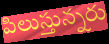
పిలుస్తున్నరు